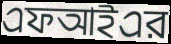
এফআইএর